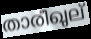
താരീഖുല്